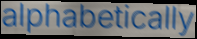
alphabetically